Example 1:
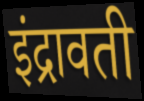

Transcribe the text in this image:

इंद्रावती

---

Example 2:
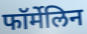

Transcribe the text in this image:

फॉर्मेलिन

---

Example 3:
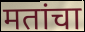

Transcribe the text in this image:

मतांचा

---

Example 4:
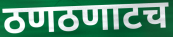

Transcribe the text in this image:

ठणठणाटच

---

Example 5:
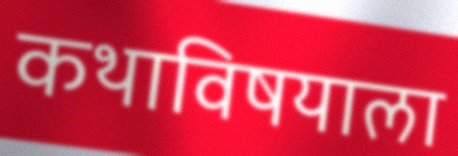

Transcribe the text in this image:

कथाविषयाला